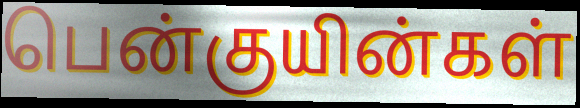
பென்குயின்கள்